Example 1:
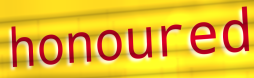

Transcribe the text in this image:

honoured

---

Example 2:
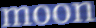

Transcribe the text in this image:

moon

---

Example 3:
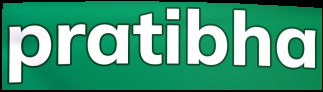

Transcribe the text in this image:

pratibha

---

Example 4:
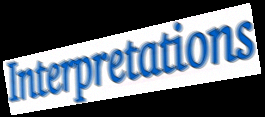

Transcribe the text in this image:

Interpretations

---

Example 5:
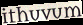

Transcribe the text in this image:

ithuvum